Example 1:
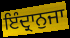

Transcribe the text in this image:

ਇੰਦ੍ਰਾਨੁਜਾ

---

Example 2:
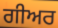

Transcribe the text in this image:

ਗੀਅਰ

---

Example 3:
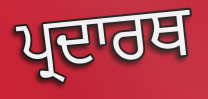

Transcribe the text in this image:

ਪ੍ਰਦਾਰਥ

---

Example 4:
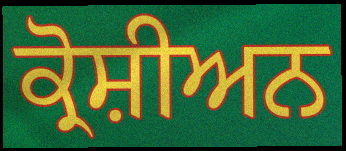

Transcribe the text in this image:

ਕ੍ਰੋਸ਼ੀਅਨ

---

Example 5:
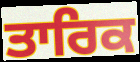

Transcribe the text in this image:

ਤਾਰਿਕ